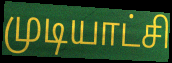
முடியாட்சி